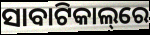
ସାବାଟିକାଲ୍‌ରେ